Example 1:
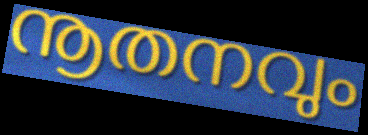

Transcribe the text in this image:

നൂതനവും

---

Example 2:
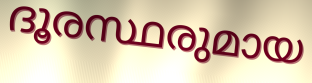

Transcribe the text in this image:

ദൂരസ്ഥരുമായ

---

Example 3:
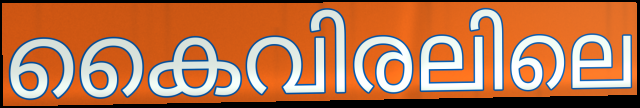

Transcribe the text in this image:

കൈവിരലിലെ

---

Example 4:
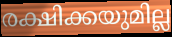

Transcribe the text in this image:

രക്ഷിക്കയുമില്ല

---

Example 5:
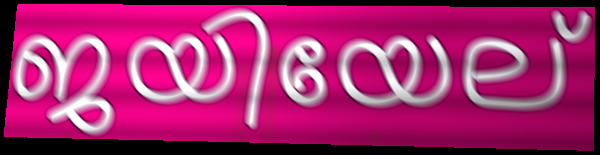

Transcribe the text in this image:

ജയിയേല്